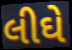
લીઘે